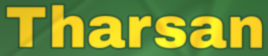
Tharsan